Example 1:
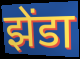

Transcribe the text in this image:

झेंडा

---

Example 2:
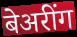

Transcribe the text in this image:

बेअरींग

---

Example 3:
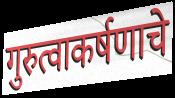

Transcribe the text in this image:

गुरुत्वाकर्षणाचे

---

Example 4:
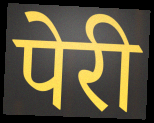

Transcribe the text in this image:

पेरी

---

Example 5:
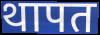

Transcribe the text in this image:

थापत